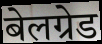
बेलग्रेड